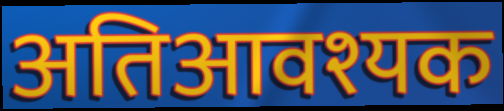
अतिआवश्यक